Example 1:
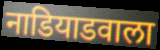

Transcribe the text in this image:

नाडियाडवाला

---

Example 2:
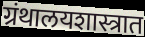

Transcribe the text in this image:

ग्रंथालयशास्त्रात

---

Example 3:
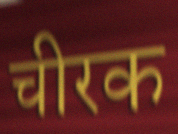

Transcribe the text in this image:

चीरक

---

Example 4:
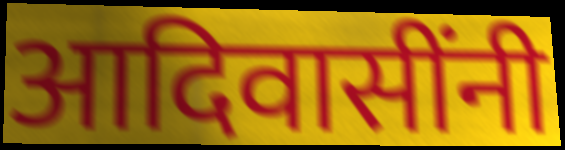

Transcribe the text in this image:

आदिवासींनी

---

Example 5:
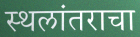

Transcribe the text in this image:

स्थलांतराचा